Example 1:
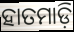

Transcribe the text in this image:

ହାତମାଡ଼ି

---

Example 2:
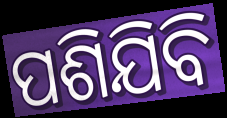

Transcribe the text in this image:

ପଶିଯିବି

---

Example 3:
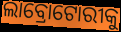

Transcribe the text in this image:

ଲାବ୍ରୋଟୋରୀକୁ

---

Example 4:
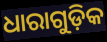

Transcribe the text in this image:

ଧାରାଗୁଡ଼ିକ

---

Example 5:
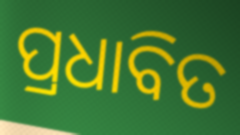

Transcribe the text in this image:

ପ୍ରଧାବିତ